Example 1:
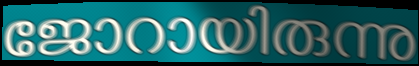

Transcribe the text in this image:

ജോറായിരുന്നു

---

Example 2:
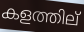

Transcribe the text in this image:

കളത്തില്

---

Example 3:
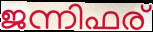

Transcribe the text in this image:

ജന്നിഫര്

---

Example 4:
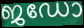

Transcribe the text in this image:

ജഡോ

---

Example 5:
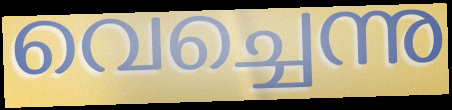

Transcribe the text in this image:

വെച്ചെന്നു